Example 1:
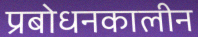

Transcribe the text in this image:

प्रबोधनकालीन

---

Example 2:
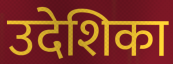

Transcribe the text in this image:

उदेशिका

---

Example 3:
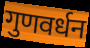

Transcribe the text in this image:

गुणवर्धन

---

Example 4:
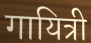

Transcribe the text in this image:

गायित्री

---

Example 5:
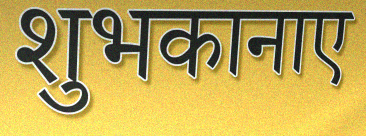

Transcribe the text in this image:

शुभकानाए